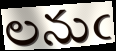
లనుఁ